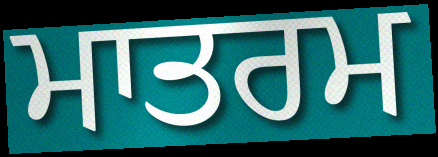
ਮਾਤਰਮ